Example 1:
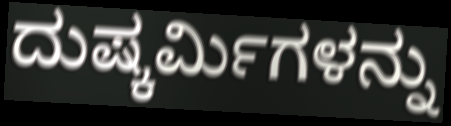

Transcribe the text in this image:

ದುಷ್ಕರ್ಮಿಗಳನ್ನು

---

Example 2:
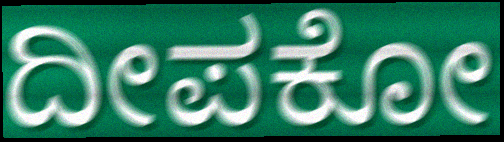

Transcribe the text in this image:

ದೀಪಕೋ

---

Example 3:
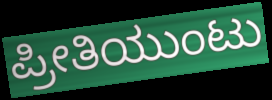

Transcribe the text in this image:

ಪ್ರೀತಿಯುಂಟು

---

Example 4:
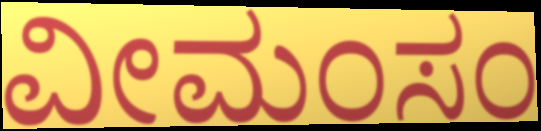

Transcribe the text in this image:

ವೀಮಂಸಂ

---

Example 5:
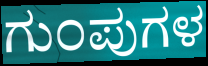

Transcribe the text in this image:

ಗುಂಪುಗಳ